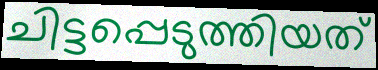
ചിട്ടപ്പെടുത്തിയത്